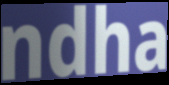
ndha